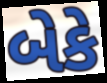
બેકે